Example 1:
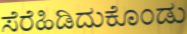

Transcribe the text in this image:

ಸೆರೆಹಿಡಿದುಕೊಂಡು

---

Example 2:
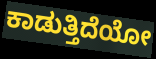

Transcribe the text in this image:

ಕಾಡುತ್ತಿದೆಯೋ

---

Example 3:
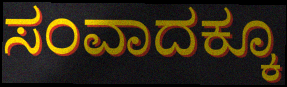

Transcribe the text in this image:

ಸಂವಾದಕ್ಕೂ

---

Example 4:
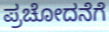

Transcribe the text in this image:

ಪ್ರಚೋದನೆಗೆ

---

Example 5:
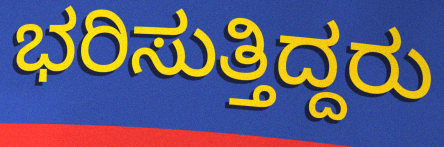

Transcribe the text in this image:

ಭರಿಸುತ್ತಿದ್ದರು